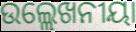
ଉଲ୍ଲେଖନୀୟା